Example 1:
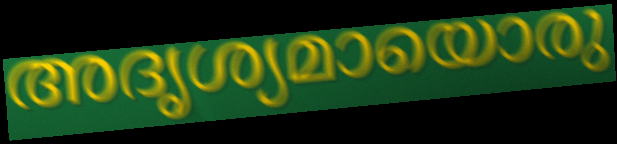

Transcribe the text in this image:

അദൃശ്യമായൊരു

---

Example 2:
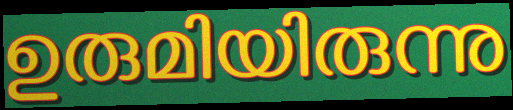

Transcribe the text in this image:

ഉരുമിയിരുന്നു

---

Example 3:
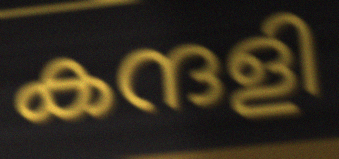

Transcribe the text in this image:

കന്ദളി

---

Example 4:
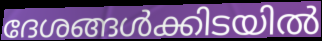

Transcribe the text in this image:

ദേശങ്ങൾക്കിടയിൽ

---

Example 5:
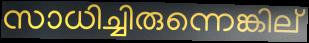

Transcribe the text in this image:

സാധിച്ചിരുന്നെങ്കില്